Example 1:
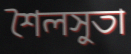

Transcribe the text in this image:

শৈলসুতা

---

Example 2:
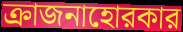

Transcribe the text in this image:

ক্রাজনাহোরকার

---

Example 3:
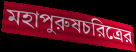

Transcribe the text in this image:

মহাপুরুষচরিত্রের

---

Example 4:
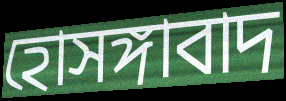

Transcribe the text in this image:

হোসঙ্গাবাদ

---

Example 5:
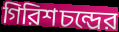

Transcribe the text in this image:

গিরিশচন্দ্রের